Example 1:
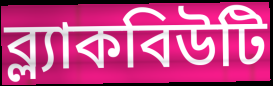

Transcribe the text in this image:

ব্ল্যাকবিউটি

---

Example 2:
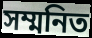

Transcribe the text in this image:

সম্মনিত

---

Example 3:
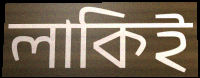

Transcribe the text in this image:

লাকিই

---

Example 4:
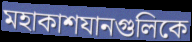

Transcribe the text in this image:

মহাকাশযানগুলিকে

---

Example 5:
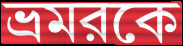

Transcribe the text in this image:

ভ্রমরকে